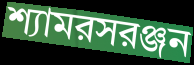
শ্যামরসরঞ্জন